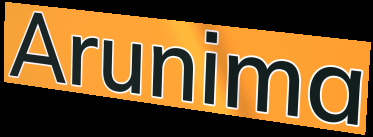
Arunima